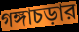
গঙ্গাচড়ার